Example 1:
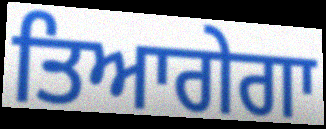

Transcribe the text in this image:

ਤਿਆਗੇਗਾ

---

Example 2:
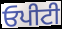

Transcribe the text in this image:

ਓਪੀਟੀ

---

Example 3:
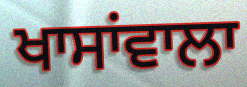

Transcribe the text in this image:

ਖਾਸਾਂਵਾਲਾ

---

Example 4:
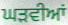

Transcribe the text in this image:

ਘੜਵੀਆਂ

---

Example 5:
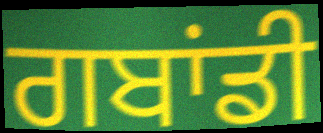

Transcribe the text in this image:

ਗਬਾਂਡੀ